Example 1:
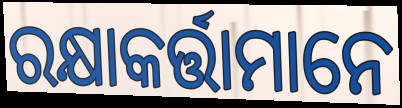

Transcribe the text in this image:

ରକ୍ଷାକର୍ତ୍ତାମାନେ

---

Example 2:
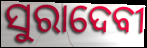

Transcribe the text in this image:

ସୁରାଦେବୀ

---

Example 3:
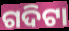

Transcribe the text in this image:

ଗଦିଟା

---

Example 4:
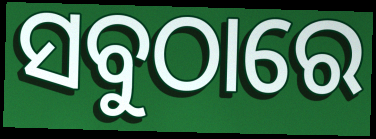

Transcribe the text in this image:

ସବୁଠାରେ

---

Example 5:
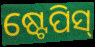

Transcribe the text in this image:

ଷ୍ଟେପିସ୍